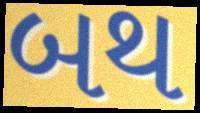
બથ